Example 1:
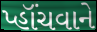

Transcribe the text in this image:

પ્હૉંચવાને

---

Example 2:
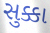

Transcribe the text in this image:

સુક્કા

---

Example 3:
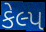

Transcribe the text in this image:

કેલ્પ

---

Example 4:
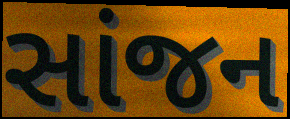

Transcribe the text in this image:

સાંજન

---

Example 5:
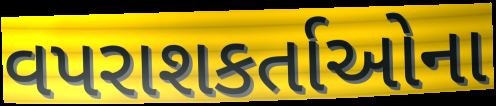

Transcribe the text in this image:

વપરાશકર્તાઓના